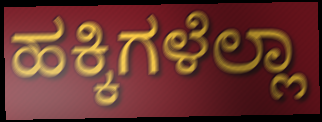
ಹಕ್ಕಿಗಳೆಲ್ಲಾ